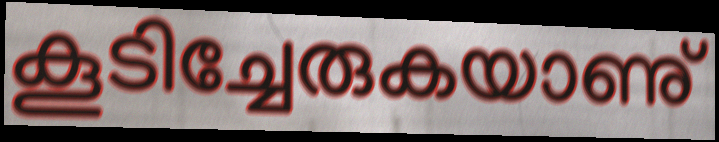
കൂടിച്ചേരുകയാണു്